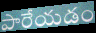
పారేయడం